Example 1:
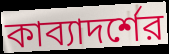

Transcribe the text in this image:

কাব্যাদর্শের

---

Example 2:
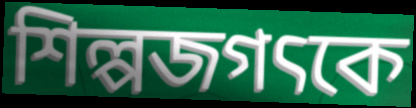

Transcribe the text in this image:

শিল্পজগৎকে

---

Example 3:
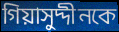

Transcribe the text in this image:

গিয়াসুদ্দীনকে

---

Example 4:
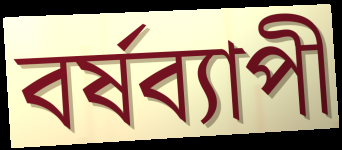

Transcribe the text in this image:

বর্ষব্যাপী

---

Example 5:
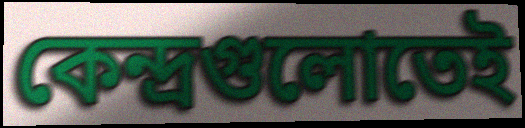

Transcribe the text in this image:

কেন্দ্রগুলোতেই